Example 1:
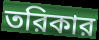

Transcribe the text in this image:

তরিকার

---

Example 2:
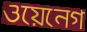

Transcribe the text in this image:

ওয়েনেগ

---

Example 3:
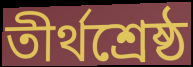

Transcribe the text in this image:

তীর্থশ্রেষ্ঠ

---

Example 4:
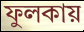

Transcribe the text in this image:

ফুলকায়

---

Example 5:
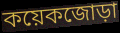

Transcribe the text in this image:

কয়েকজোড়া